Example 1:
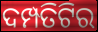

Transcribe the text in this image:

ଦମ୍ପତିଟିର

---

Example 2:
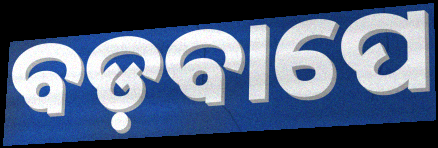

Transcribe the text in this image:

ବଡ଼ବାପେ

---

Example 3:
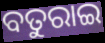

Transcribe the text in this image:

ବତୁରାଇ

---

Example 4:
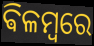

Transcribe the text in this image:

ଵିଳମ୍ବରେ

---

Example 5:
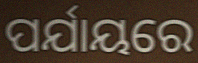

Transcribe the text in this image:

ପର୍ଯାୟରେ